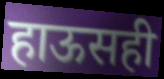
हाऊसही